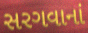
સરગવાનાં